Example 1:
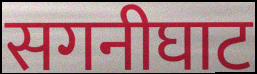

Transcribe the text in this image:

सगनीघाट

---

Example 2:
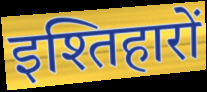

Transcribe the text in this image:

इश्तिहारों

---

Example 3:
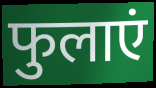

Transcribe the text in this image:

फुलाएं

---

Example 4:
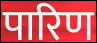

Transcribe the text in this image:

पारिण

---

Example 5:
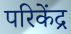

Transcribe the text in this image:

परिकेंद्र